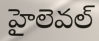
హైలెవల్